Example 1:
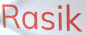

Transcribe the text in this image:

Rasik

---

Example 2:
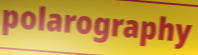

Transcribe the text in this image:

polarography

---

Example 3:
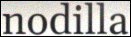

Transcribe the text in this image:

nodilla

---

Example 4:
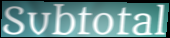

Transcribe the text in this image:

Subtotal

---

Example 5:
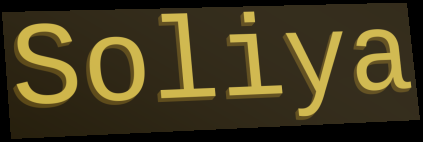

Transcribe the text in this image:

Soliya